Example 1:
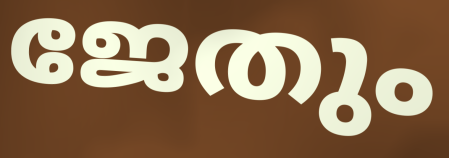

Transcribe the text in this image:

ജേതും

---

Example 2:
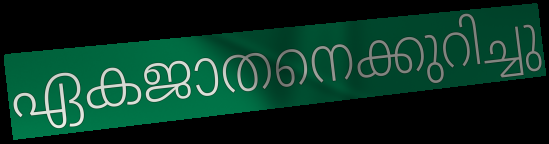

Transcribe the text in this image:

ഏകജാതനെക്കുറിച്ചു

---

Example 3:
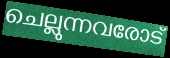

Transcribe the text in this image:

ചെല്ലുന്നവരോട്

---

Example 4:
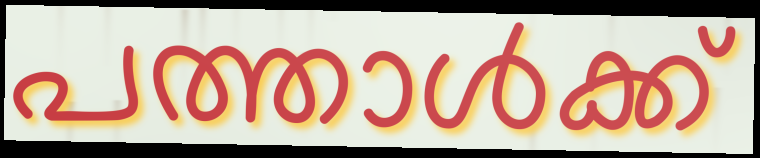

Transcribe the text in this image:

പത്താൾക്ക്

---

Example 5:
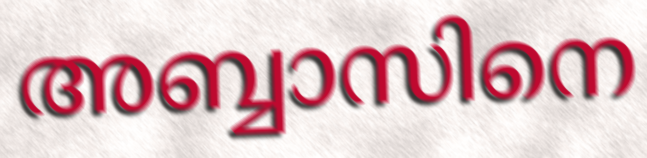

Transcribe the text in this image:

അബ്ബാസിനെ